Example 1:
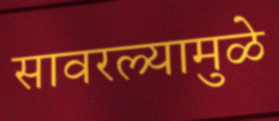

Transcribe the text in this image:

सावरल्यामुळे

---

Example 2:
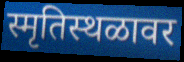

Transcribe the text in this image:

स्मृतिस्थळावर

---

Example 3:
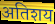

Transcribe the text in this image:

अतिशय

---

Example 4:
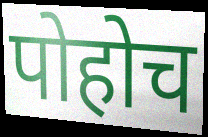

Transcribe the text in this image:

पोहोच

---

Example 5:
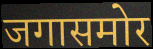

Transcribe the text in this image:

जगासमोर